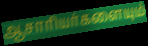
ஆசாரியர்களையும்